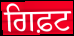
ਗਿਫ਼ਟ